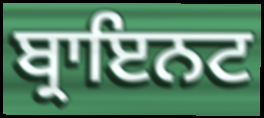
ਬ੍ਰਾਇਨਟ